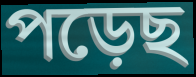
পড়েছ